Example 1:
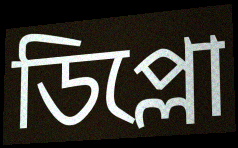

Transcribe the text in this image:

ডিপ্লো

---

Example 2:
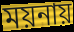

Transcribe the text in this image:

ময়নায়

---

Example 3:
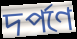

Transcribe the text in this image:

দর্পণে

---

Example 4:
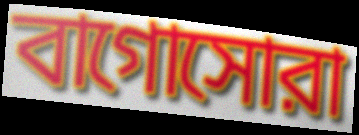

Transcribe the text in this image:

বাগোসোরা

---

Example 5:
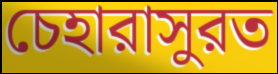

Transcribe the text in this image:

চেহারাসুরত